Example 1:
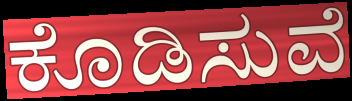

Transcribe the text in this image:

ಕೊಡಿಸುವೆ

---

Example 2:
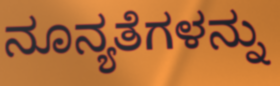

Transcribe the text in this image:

ನೂನ್ಯತೆಗಳನ್ನು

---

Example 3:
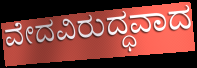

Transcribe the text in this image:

ವೇದವಿರುದ್ಧವಾದ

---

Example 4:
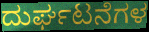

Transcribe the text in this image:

ದುರ್ಘಟನೆಗಳ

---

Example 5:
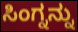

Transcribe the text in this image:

ಸಿಂಗ್ನನ್ನು